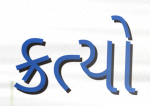
ક્રત્યો